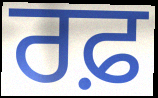
ਰਫ਼